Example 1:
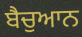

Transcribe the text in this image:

ਬੈਚੁਆਨ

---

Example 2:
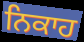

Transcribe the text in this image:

ਨਿਕਾਹ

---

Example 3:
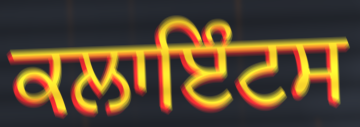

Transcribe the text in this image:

ਕਲਾਇੰਟਸ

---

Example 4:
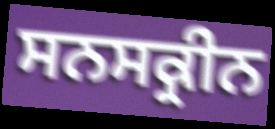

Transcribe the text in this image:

ਸਨਸਕ੍ਰੀਨ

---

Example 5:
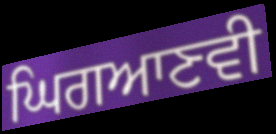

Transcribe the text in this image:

ਘਿਗਆਣਵੀ